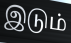
இடும்